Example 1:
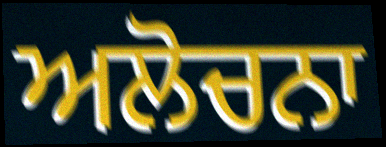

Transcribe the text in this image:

ਅਲੋਚਨਾ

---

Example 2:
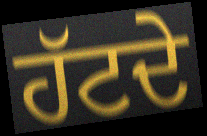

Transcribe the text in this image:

ਹੱਟਦੇ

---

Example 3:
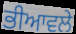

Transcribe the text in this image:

ਭੀਆਵਲੇ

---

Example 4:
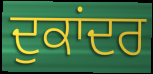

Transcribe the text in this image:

ਦੁਕਾਂਦਰ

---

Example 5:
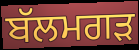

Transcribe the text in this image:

ਬੱਲਮਗੜ